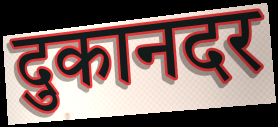
दुकानदर